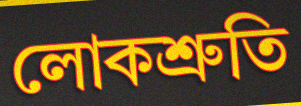
লোকশ্ৰুতি